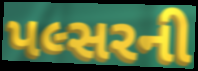
પલ્સરની